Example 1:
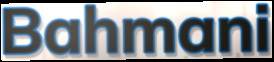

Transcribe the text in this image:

Bahmani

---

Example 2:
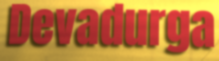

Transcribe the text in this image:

Devadurga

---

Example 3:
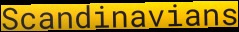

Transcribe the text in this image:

Scandinavians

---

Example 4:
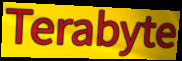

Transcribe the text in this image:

Terabyte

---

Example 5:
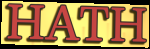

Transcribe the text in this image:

HATH